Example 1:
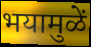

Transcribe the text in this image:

भयामुळें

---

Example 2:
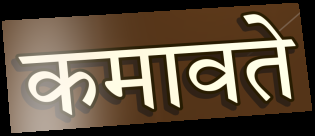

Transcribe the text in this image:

कमावते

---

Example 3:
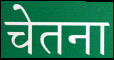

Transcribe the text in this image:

चेतना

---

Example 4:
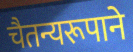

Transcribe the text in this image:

चैतन्यरूपाने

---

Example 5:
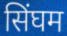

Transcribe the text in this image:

सिंघम